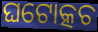
ଘଟୋତ୍କଚ